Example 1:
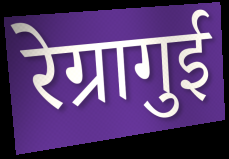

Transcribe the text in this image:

रेग्रागुई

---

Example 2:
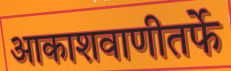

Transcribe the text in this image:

आकाशवाणीतर्फे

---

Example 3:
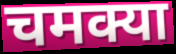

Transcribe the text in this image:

चमक्या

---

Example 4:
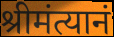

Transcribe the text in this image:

श्रीमंत्यानं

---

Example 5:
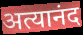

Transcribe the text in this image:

अत्यानंद